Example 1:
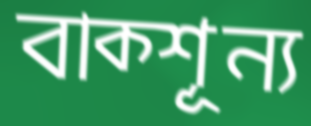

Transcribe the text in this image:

বাক্শূন্য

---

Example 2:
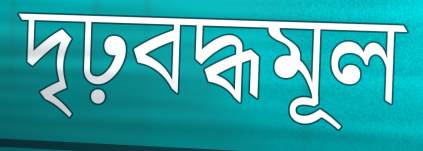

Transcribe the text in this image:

দৃঢ়বদ্ধমূল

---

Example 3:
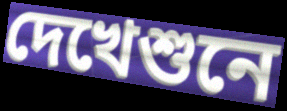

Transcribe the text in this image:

দেখেশুনে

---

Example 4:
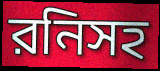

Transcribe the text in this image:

রনিসহ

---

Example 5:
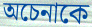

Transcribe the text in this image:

অচেনাকে